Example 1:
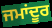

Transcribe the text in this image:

ਜਮਾਂਦੂਰ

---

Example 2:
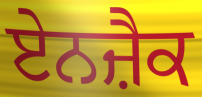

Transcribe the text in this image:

ਏਨਜ਼ੈਕ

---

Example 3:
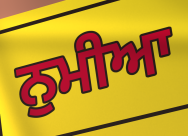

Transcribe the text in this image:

ਨੁਮੀਆ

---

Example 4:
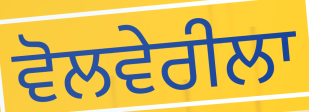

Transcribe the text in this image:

ਵੋਲਵੇਰੀਲਾ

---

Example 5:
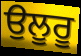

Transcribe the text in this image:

ਉਲੂਰੂ